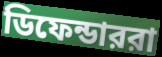
ডিফেন্ডাররা